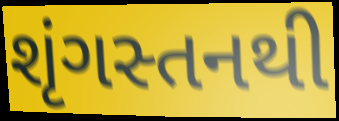
શૃંગસ્તનથી